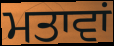
ਮਤਾਵਾਂ